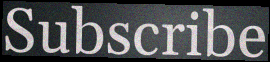
Subscribe